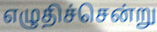
எழுதிச்சென்று